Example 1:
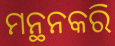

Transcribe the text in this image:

ମନ୍ଥନକରି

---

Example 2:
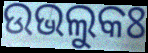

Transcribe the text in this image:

ଉଭଲୁକଃ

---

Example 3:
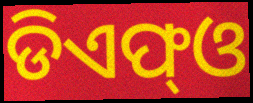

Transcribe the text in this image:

ଡିଏଫ୍ଓ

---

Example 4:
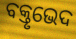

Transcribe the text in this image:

ବକ୍ତୃଭେଦ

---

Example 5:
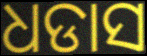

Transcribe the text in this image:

ଧଡାସ